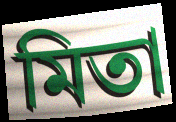
মিতা